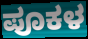
ಪೂಕಳ